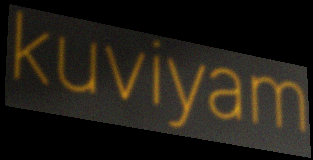
kuviyam